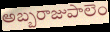
అబ్బరాజుపాలెం